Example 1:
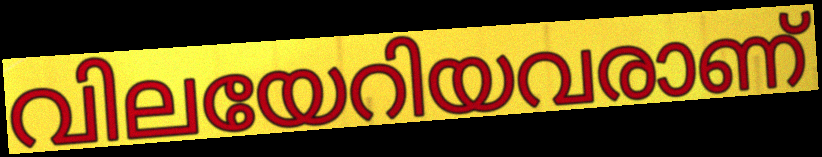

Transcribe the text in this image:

വിലയേറിയവരാണ്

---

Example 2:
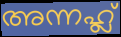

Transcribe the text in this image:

അന്നഹ്ല്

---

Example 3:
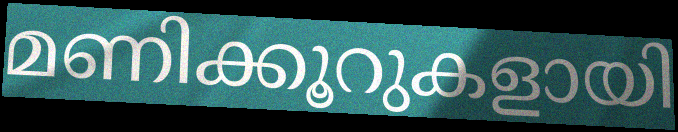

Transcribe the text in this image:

മണിക്കൂറുകളായി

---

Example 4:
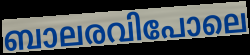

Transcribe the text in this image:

ബാലരവിപോലെ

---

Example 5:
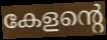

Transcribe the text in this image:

കേളന്റെ